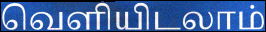
வெளியிடலாம்